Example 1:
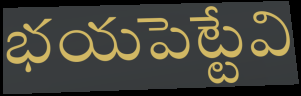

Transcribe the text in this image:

భయపెట్టేవి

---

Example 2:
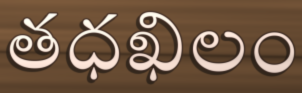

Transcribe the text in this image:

తధఖిలం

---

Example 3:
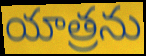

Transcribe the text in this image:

యాత్రను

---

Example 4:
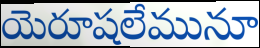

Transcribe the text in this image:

యెరూషలేమునూ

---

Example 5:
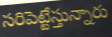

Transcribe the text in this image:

సరిపెట్టేస్తున్నారు